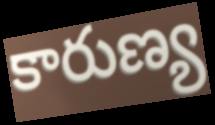
కారుణ్య